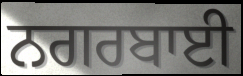
ਨਗਰਬਾਈ